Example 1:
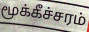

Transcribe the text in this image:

மூக்கீச்சரம்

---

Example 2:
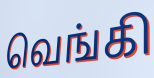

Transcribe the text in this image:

வெங்கி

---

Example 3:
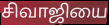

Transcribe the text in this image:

சிவாஜியை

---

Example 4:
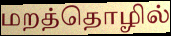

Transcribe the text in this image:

மறத்தொழில்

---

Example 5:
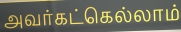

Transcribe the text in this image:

அவர்கட்கெல்லாம்